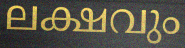
ലക്ഷവും